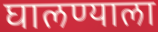
घालण्याला